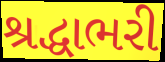
શ્રદ્ધાભરી